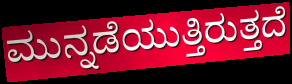
ಮುನ್ನಡೆಯುತ್ತಿರುತ್ತದೆ